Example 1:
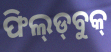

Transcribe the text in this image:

ଫିଲ୍‍ଡ୍‍ବୁକ୍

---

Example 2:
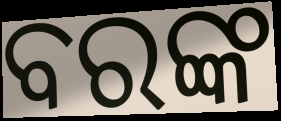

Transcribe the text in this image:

ବରଙ୍କ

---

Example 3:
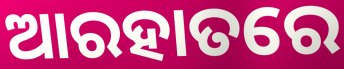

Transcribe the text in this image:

ଆରହାତରେ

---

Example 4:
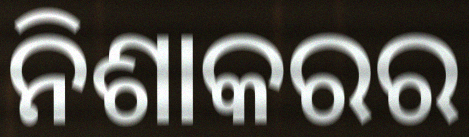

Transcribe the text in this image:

ନିଶାକରର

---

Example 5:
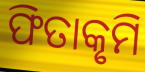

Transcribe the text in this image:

ଫିତାକୃମି